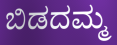
ಬಿಡದಮ್ಮ